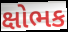
ક્ષોભક